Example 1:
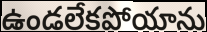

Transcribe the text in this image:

ఉండలేకపోయాను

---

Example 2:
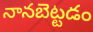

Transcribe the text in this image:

నానబెట్టడం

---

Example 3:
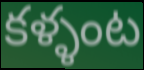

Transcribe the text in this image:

కళ్ళంట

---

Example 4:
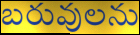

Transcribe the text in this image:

బరువులను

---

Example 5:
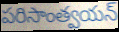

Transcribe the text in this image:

పరిసాంత్వయన్